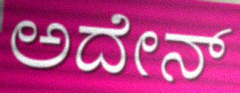
ಅದೇನ್